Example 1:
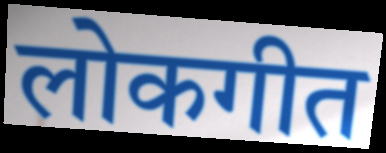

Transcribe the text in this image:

लोकगीत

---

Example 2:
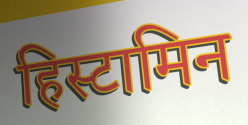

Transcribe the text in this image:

हिस्टामिन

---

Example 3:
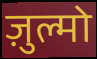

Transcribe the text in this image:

ज़ुल्मो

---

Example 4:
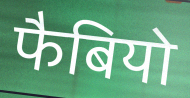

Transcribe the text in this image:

फैबियो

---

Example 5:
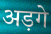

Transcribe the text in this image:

अड़गे